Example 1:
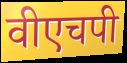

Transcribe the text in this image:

वीएचपी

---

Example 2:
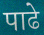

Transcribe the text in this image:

पाढे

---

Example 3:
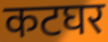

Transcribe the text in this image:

कटघर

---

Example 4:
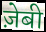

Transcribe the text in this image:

ज़ेबी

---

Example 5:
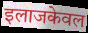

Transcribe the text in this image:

इलाजकेवल